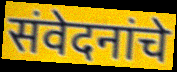
संवेदनांचे